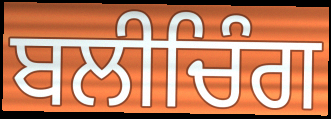
ਬਲੀਚਿੰਗ